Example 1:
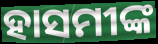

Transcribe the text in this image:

ହାସମୀଙ୍କ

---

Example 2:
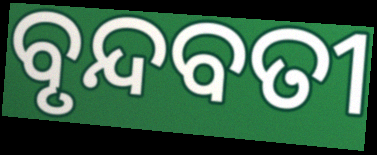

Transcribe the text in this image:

ବୃନ୍ଦବତୀ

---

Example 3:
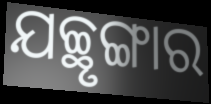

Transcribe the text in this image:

ଯଚ୍ଛୃଙ୍ଗାର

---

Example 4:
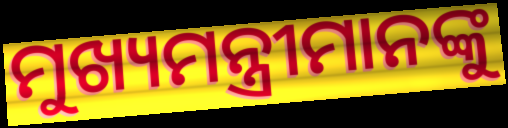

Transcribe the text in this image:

ମୁଖ୍ୟମନ୍ତ୍ରୀମାନଙ୍କୁ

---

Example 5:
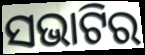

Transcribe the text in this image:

ସଭାଟିର